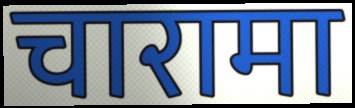
चारामा